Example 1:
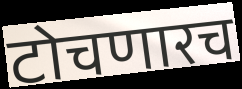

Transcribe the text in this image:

टोचणारच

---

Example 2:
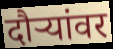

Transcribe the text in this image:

दौऱ्यांवर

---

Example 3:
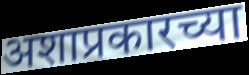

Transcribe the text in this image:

अशाप्रकारच्या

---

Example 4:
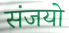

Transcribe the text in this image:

संजयो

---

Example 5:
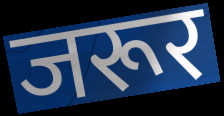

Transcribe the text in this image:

जरूर